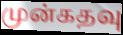
முன்கதவு